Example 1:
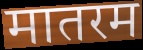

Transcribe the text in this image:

मातरम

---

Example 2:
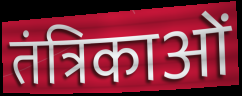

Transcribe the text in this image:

तंत्रिकाओं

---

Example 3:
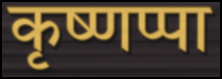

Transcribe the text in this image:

कृष्‍णप्‍पा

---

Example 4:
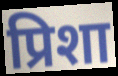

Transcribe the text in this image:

प्रिशा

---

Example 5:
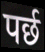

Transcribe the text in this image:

पर्छ